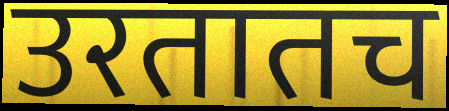
उरतातच